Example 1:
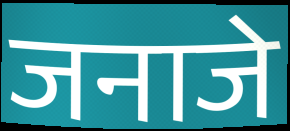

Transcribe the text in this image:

जनाजे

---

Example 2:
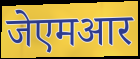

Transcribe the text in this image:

जेएमआर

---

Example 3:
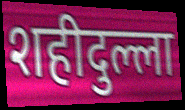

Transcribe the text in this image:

शहीदुल्ला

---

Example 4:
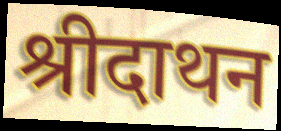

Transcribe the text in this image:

श्रीदाथन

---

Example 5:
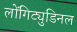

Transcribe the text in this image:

लोंगिट्युडिनल